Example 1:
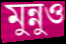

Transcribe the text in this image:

মুন্নুও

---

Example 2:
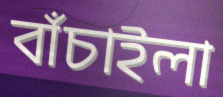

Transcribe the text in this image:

বাঁচাইলা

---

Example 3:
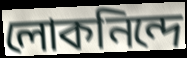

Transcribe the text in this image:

লোকনিন্দে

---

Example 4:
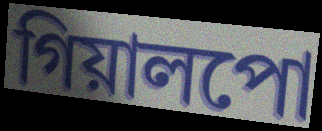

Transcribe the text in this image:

গিয়ালপো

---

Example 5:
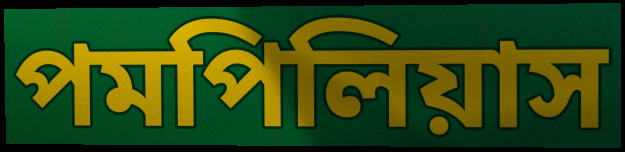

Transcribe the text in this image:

পমপিলিয়াস